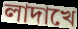
লাদাখে